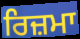
ਰਿਜ਼ਮਾ